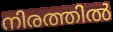
നിരത്തിൽ